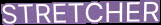
STRETCHER